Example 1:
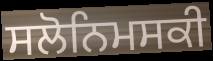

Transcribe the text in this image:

ਸਲੋਨਿਮਸਕੀ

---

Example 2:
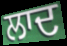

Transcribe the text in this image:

ਲਾਦ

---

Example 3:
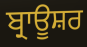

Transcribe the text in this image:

ਬ੍ਰਾਊਸ਼ਰ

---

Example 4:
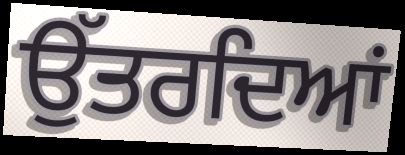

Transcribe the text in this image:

ਉੱਤਰਦਿਆਂ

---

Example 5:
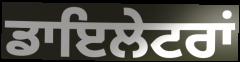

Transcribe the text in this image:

ਡਾਇਲੇਟਰਾਂ